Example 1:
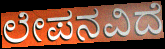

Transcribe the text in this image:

ಲೇಪನವಿದೆ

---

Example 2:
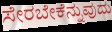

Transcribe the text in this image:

ಸೇರಬೇಕೆನ್ನುವುದು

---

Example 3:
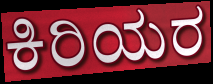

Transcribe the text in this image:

ಕಿರಿಯರ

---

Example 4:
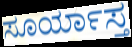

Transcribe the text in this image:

ಸೂರ್ಯಾಸ್ತ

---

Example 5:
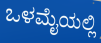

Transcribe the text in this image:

ಒಳಮೈಯಲ್ಲಿ